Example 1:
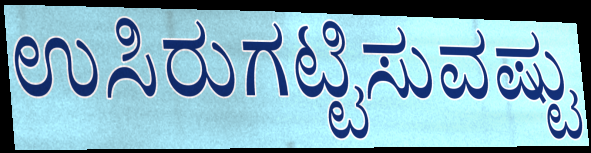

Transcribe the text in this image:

ಉಸಿರುಗಟ್ಟಿಸುವಷ್ಟು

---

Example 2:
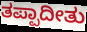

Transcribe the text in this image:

ತಪ್ಪಾದೀತು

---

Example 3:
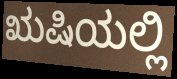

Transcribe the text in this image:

ಋಷಿಯಲ್ಲಿ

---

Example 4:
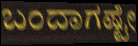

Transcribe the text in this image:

ಬಂದಾಗಷ್ಟೇ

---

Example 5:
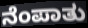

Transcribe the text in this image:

ನೆಂಪಾತು